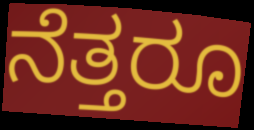
ನೆತ್ತರೂ